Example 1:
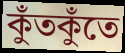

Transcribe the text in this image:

কুঁতকুঁতে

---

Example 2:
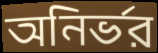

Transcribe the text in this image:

অনির্ভর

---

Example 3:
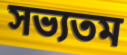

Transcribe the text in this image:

সভ্যতম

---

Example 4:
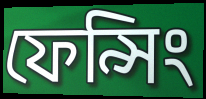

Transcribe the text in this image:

ফেন্সিং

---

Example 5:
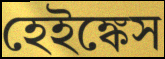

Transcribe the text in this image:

হেইঙ্কেস